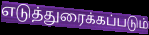
எடுத்துரைக்கப்படும்